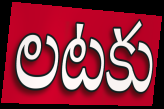
లటకు